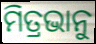
ମିତ୍ରଭାନୁ